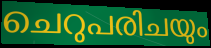
ചെറുപരിചയും